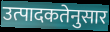
उत्पादकतेनुसार